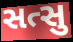
સત્સુ